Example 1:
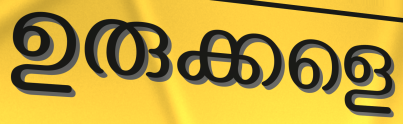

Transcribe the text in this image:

ഉരുക്കളെ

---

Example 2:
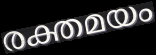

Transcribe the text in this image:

രക്തമയം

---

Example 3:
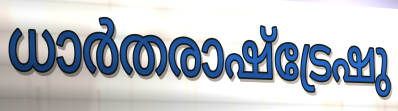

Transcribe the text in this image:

ധാർതരാഷ്ട്രേഷു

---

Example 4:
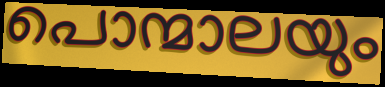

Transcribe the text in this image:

പൊന്മാലയും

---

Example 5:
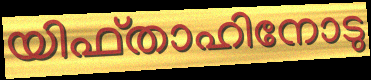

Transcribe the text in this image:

യിഫ്താഹിനോടു